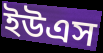
ইউএস